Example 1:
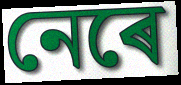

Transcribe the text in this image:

নেৰে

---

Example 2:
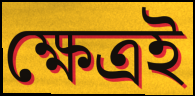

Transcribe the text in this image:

ক্ষেত্ৰই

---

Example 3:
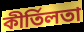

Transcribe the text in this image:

কীৰ্তিলতা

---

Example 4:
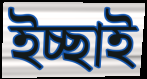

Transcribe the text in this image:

ইচ্ছাই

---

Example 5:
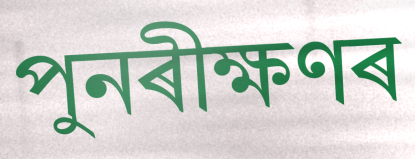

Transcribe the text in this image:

পুনৰীক্ষণৰ